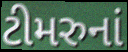
ટીમરુનાં